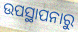
ଉପସ୍ଥାପନାରୁ